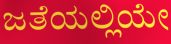
ಜತೆಯಲ್ಲಿಯೇ